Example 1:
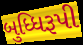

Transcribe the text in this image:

બુધ્ધિરૂપી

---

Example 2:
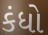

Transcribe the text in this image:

કંધો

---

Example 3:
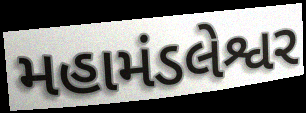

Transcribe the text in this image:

મહામંડલેશ્વર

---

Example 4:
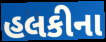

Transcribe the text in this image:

હલકીના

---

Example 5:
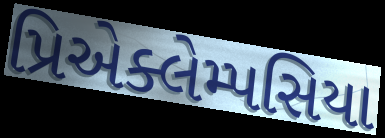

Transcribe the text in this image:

પ્રિએક્લેમ્પસિયા